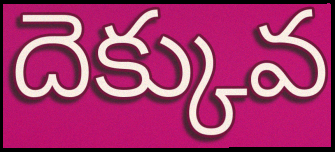
దెక్కువ